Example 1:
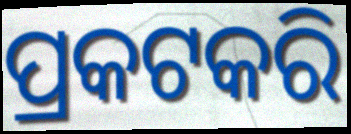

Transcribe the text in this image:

ପ୍ରକଟକରି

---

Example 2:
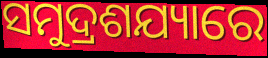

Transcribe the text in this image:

ସମୁଦ୍ରଶଯ୍ୟାରେ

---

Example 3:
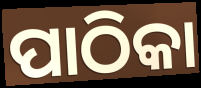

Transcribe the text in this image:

ପାଠିକା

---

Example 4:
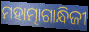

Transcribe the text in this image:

ମହାତ୍ମାଗାନ୍ଧିଜୀ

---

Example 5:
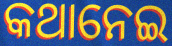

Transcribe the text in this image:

କଥାନେଇ